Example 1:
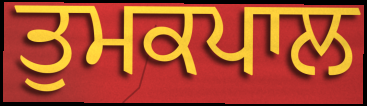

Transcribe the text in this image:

ਤੁਮਕਪਾਲ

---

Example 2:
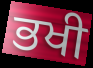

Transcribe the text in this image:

ਭਖੀ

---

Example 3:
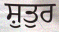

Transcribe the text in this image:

ਸ਼ੁਤੁਰ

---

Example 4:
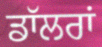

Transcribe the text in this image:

ਡਾੱਲਰਾਂ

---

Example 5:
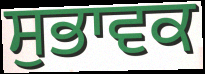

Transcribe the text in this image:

ਸੁਭਾਵਕ